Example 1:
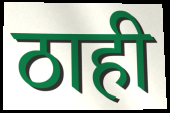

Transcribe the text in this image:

ठाही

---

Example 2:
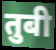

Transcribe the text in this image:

तुबी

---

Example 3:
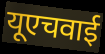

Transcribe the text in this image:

यूएचवाई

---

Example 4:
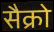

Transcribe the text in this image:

सैक्रो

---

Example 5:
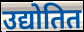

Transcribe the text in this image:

उद्योतित